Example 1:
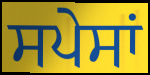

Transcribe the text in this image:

ਸਪੇਸਾਂ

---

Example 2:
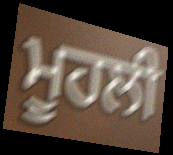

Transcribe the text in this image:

ਮੂਹਲੀ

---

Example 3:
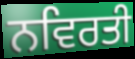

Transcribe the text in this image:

ਨਵਿਰਤੀ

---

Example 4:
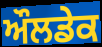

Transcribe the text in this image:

ਔਲਡੇਕ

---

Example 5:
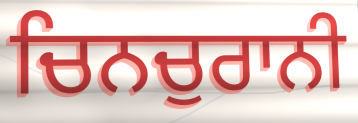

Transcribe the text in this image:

ਚਿਨਚੁਰਾਨੀ